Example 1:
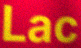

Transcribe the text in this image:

Lac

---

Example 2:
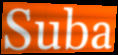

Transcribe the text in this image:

Suba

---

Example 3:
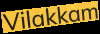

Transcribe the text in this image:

Vilakkam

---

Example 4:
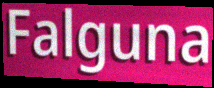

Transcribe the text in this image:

Falguna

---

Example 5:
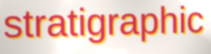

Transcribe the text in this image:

stratigraphic